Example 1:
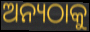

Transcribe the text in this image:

ଅନ୍ୟଠାକୁ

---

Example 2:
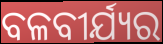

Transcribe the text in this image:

ବଳବୀର୍ଯ୍ୟର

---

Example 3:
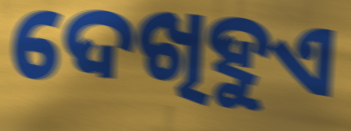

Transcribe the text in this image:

ଦେଖିହୁଏ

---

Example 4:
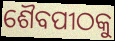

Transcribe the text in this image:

ଶୈବପୀଠକୁ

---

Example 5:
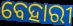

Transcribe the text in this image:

ବେହାରୀ